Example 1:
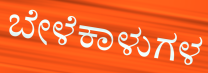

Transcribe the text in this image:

ಬೇಳೆಕಾಳುಗಳ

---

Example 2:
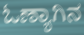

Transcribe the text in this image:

ಓಣ್ಯಾಗಿನ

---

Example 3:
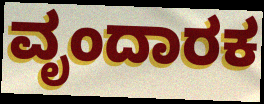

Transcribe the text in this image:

ವೃಂದಾರಕ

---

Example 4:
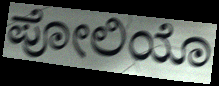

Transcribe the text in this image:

ಪೋಲಿಯೊ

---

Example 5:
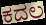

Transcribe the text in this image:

ಕದಲ